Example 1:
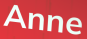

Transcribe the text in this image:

Anne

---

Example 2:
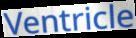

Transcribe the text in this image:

Ventricle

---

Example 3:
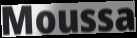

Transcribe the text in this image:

Moussa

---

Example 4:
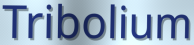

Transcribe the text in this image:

Tribolium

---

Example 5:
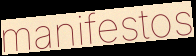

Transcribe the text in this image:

manifestos